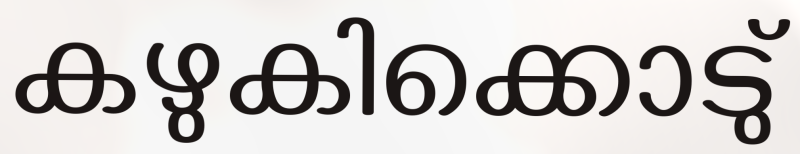
കഴുകിക്കൊടു്